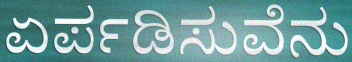
ಏರ್ಪಡಿಸುವೆನು